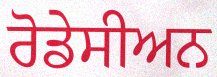
ਰੋਡੇਸੀਅਨ